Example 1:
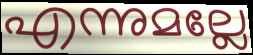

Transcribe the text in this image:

എന്നുമല്ലേ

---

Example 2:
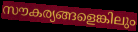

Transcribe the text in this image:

സൗകര്യങ്ങളെങ്കിലും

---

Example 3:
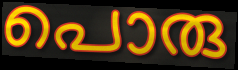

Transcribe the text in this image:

പൊരു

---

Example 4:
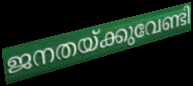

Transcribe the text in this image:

ജനതയ്ക്കുവേണ്ടി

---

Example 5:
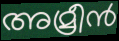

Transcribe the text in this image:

അമ്രീൻ